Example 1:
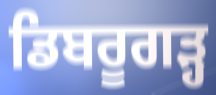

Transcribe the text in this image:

ਡਿਬਰੂਗੜ੍ਹ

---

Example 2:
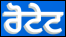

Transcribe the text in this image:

ਰੋਟੇਟ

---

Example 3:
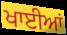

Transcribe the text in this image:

ਖਾਈਆਂ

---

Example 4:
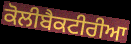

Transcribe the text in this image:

ਕੋਲੀਬੈਕਟੀਰੀਆ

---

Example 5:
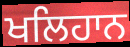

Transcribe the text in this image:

ਖਲਿਹਾਨ